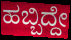
ಹಬ್ಬಿದ್ದೇ